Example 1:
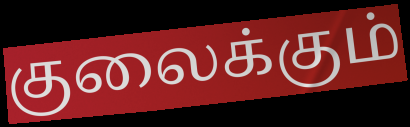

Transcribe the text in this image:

குலைக்கும்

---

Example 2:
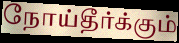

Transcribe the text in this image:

நோய்தீர்க்கும்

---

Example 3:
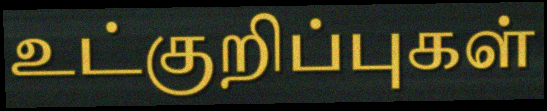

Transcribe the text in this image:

உட்குறிப்புகள்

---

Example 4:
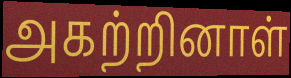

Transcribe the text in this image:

அகற்றினாள்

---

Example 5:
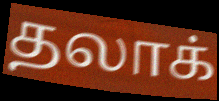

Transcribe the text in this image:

தலாக்